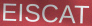
EISCAT